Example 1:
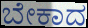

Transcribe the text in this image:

ಬೇಕಾದ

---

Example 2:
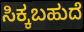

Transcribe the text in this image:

ಸಿಕ್ಕಬಹುದೆ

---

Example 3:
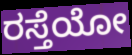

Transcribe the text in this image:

ರಸ್ತೆಯೋ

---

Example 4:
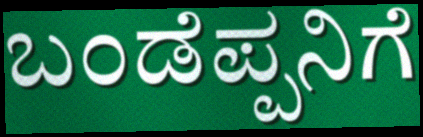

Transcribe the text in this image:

ಬಂಡೆಪ್ಪನಿಗೆ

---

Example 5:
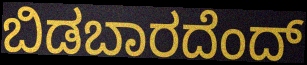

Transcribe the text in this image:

ಬಿಡಬಾರದೆಂದ್